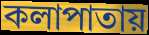
কলাপাতায়